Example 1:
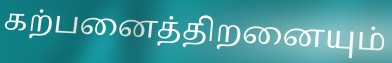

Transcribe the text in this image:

கற்பனைத்திறனையும்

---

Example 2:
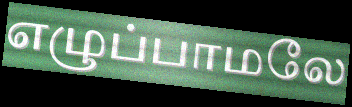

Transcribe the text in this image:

எழுப்பாமலே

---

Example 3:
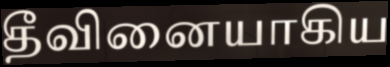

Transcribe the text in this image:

தீவினையாகிய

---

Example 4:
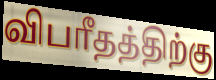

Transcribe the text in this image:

விபரீதத்திற்கு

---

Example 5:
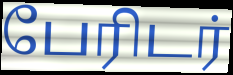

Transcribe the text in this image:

பேரிடர்